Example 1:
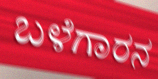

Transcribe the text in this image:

ಬಳೆಗಾರನ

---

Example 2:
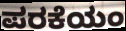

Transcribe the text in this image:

ಪರಕೆಯಂ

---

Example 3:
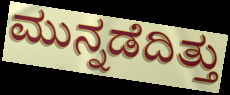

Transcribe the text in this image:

ಮುನ್ನಡೆದಿತ್ತು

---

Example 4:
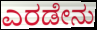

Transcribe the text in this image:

ಎರಡೇನು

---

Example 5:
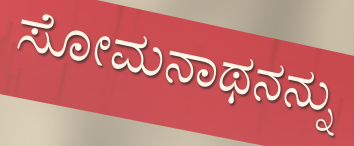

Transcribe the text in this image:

ಸೋಮನಾಥನನ್ನು